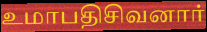
உமாபதிசிவனார்